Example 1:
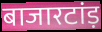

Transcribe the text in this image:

बाजारटांड़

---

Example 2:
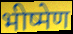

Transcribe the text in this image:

भीष्मेण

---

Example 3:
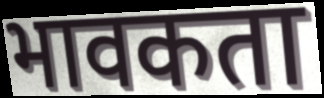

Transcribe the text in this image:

भावकता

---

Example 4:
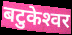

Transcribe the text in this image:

बटुकेश्‍वर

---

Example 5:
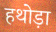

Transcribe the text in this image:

हथोड़ा